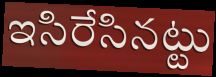
ఇసిరేసినట్టు